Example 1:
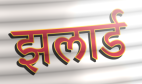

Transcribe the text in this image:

झलार्ड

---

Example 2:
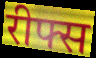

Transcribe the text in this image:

रीफ्स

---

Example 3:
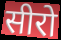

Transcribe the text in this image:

सीरो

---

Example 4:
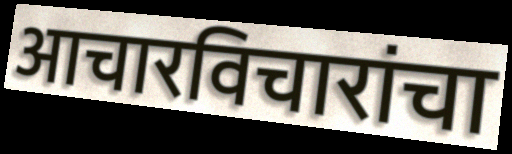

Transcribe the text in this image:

आचारविचारांचा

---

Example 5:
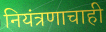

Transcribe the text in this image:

नियंत्रणाचाही